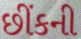
છીંકની